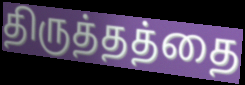
திருத்தத்தை